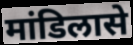
मांडिलासे